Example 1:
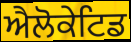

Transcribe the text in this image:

ਐਲੋਕੇਟਿਡ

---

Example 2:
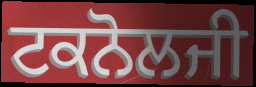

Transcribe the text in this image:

ਟਕਨੋਲਜੀ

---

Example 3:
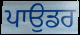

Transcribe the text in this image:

ਪਾਉਡਰ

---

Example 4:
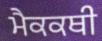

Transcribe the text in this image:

ਮੈਕਕਥੀ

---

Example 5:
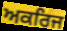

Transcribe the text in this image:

ਅਕਰਿਜ